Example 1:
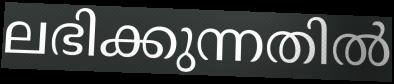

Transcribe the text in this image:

ലഭിക്കുന്നതിൽ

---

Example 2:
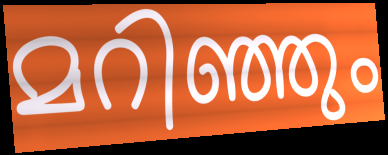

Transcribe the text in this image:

മറിഞ്ഞും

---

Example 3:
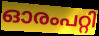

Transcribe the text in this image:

ഓരംപറ്റി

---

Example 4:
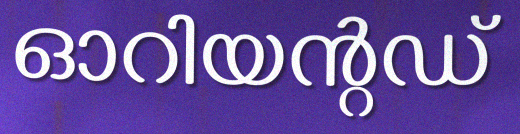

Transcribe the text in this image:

ഓറിയന്റഡ്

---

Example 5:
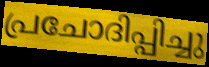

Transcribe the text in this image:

പ്രചോദിപ്പിച്ചു